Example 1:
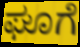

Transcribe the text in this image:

ಘೂಗೆ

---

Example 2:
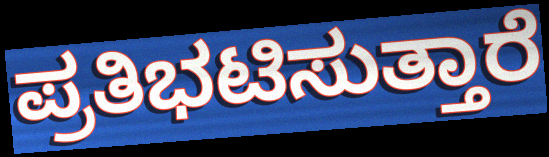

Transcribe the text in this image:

ಪ್ರತಿಭಟಿಸುತ್ತಾರೆ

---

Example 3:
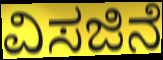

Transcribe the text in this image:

ವಿಸಜಿನೆ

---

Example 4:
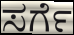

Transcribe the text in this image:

ಸರ್ಗೆ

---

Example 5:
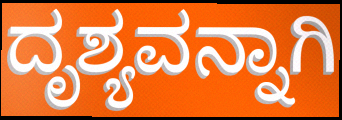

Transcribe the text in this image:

ದೃಶ್ಯವನ್ನಾಗಿ